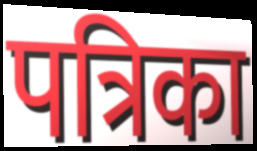
पत्रिका